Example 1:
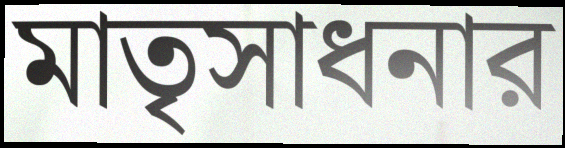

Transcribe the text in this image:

মাতৃসাধনার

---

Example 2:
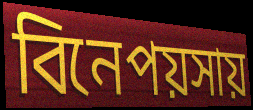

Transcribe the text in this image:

বিনেপয়সায়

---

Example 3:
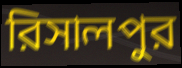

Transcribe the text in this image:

রিসালপুর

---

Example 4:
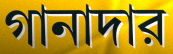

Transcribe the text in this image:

গানাদার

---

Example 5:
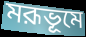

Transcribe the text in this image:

মরূভূমে